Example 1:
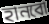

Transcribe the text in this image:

হানবো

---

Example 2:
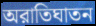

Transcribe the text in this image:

অরাতিঘাতন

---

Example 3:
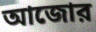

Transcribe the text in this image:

আজোর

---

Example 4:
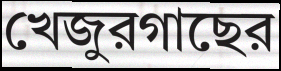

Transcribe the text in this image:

খেজুরগাছের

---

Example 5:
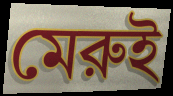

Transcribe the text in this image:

মেরুই